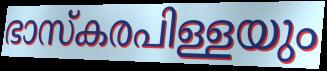
ഭാസ്കരപിള്ളയും